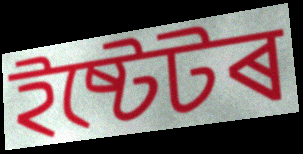
ইষ্টেটৰ